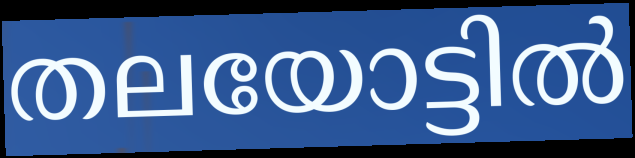
തലയോട്ടിൽ